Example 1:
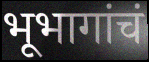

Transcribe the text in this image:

भूभागांचं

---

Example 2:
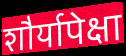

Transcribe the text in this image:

शौर्यापेक्षा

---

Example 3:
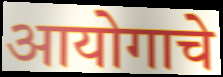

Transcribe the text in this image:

आयोगाचे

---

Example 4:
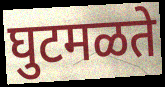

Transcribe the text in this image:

घुटमळते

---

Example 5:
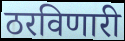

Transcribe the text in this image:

ठरविणारी